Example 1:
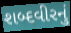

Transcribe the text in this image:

શબ્દવીરનું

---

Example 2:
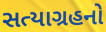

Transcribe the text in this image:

સત્યાગ્રહનો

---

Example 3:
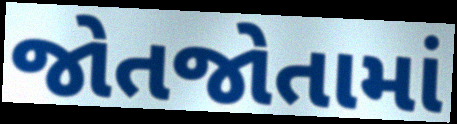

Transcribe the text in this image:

જોતજોતામાં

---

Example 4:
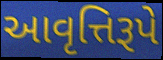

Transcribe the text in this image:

આવૃત્તિરૂપે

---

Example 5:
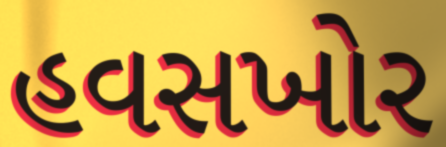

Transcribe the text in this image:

હવસખોર